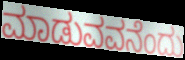
ಮಾಡುವವನೆಂದು